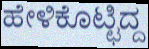
ಹೇಳಿಕೊಟ್ಟಿದ್ದ